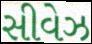
સીવેઝ